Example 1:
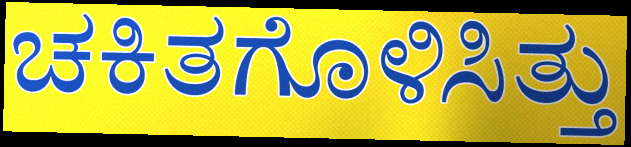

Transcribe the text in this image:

ಚಕಿತಗೊಳಿಸಿತ್ತು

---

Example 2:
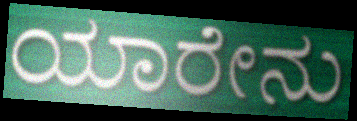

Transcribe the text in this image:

ಯಾರೇನು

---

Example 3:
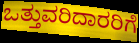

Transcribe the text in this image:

ಒತ್ತುವರಿದಾರರಿಗೆ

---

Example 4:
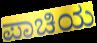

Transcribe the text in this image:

ಪಾಚಿಯ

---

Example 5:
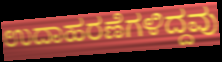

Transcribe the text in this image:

ಉದಾಹರಣೆಗಳಿದ್ದವು